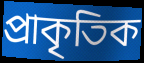
প্রাকৃতিক